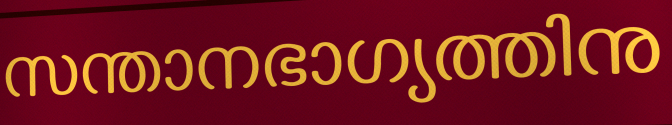
സന്താനഭാഗ്യത്തിനു